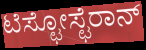
ಟೆಸ್ಟೋಸ್ಟೆರಾನ್